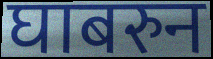
घाबरुन